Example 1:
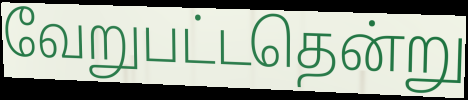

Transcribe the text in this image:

வேறுபட்டதென்று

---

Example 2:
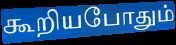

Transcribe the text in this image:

கூறியபோதும்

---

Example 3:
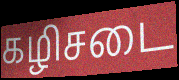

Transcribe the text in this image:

கழிசடை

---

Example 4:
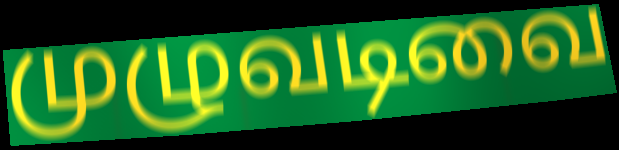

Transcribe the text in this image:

முழுவடிவை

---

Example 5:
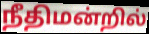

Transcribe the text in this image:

நீதிமன்றில்